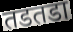
तडतडा